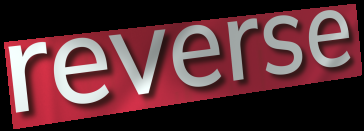
reverse